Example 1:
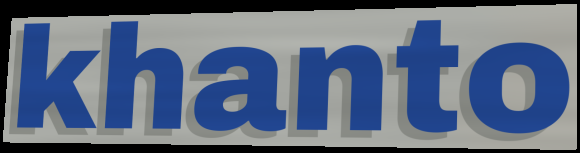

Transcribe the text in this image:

khanto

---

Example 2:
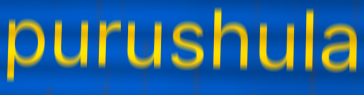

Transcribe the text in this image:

purushula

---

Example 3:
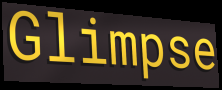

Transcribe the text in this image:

Glimpse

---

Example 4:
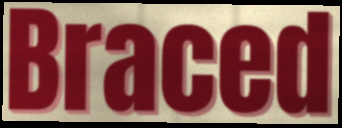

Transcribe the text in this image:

Braced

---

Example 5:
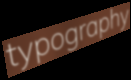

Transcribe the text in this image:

typography